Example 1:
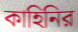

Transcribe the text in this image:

কাহিনির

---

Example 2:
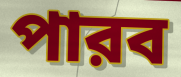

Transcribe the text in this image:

পারব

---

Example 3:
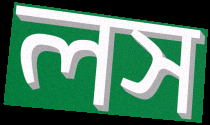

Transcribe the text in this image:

লস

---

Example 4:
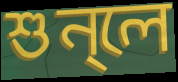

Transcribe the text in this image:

শুন্‌লে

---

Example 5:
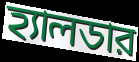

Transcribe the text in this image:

হ্যালডার